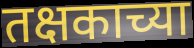
तक्षकाच्या